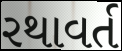
રથાવર્ત